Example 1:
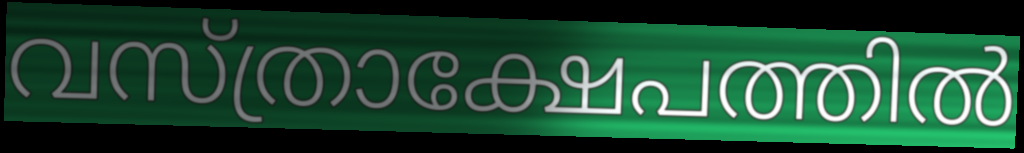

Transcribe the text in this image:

വസ്ത്രാക്ഷേപത്തിൽ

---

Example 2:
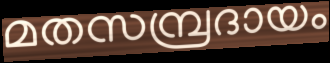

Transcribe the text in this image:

മതസമ്പ്രദായം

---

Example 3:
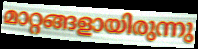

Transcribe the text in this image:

മാറ്റങ്ങളായിരുന്നു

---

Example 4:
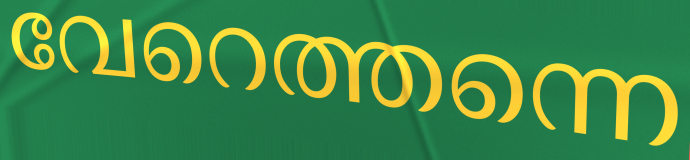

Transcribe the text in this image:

വേറെത്തന്നെ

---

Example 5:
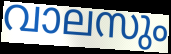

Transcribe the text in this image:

വാലസും